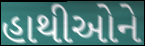
હાથીઓને